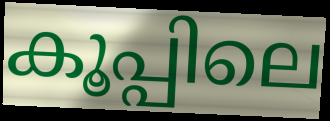
കൂപ്പിലെ